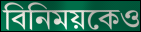
বিনিময়কেও